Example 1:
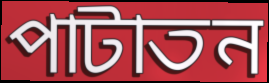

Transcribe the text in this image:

পাটাতন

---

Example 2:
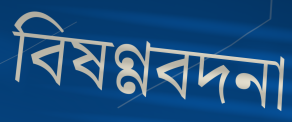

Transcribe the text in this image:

বিষণ্ণবদনা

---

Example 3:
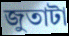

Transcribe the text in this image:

জুতাটা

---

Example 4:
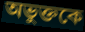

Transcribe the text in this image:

অভুক্তকে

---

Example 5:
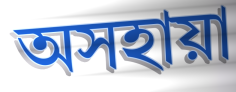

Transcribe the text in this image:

অসহায়া